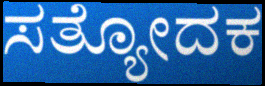
ಸತ್ಯೋದಕ